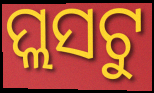
ପ୍ଲସଟୁ